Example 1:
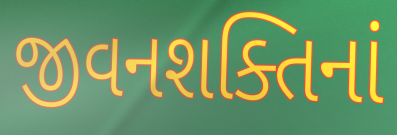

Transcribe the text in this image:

જીવનશક્તિનાં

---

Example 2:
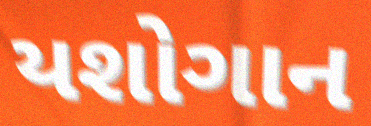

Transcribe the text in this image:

યશોગાન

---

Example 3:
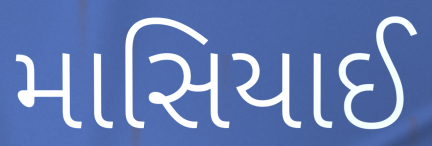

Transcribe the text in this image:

માસિયાઈ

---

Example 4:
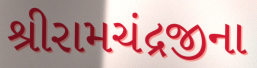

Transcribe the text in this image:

શ્રીરામચંદ્રજીના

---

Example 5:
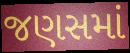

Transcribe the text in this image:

જણસમાં